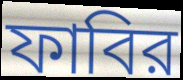
ফাবির